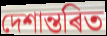
দেশান্তৰিত